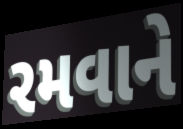
રમવાને